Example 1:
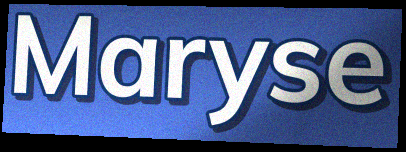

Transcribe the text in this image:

Maryse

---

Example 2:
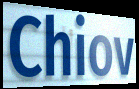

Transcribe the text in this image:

Chiov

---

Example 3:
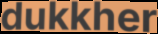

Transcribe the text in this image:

dukkher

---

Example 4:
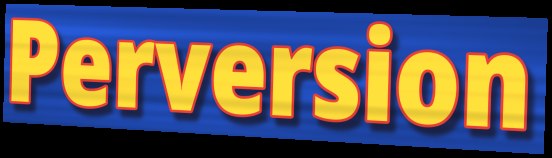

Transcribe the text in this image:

Perversion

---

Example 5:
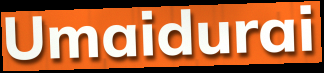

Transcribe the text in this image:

Umaidurai